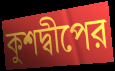
কুশদ্বীপের